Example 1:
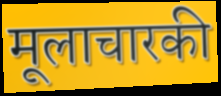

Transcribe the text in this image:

मूलाचारकी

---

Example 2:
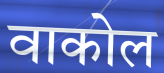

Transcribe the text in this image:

वाकोल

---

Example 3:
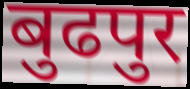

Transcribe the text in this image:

बुढपुर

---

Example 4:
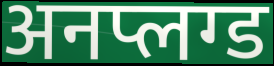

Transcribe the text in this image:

अनप्लग्ड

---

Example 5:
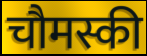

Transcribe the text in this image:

चौमस्की